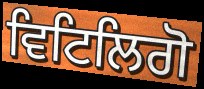
ਵਿਟਿਲਿਗੋ